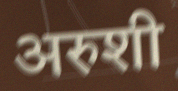
अरुशी